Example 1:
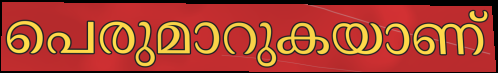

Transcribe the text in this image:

പെരുമാറുകയാണ്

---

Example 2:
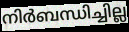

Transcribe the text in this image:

നിർബന്ധിച്ചില്ല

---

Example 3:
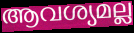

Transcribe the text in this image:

ആവശ്യമല്ല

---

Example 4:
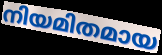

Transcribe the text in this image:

നിയമിതമായ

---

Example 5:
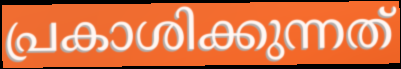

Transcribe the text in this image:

പ്രകാശിക്കുന്നത്